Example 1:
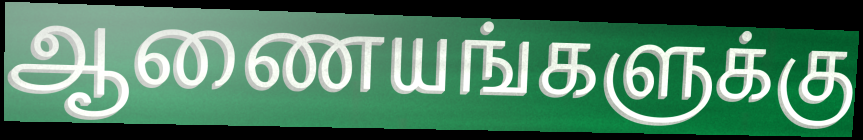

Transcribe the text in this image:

ஆணையங்களுக்கு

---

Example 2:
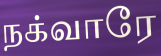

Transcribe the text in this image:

நக்வாரே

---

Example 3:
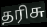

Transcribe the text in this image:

தரிசு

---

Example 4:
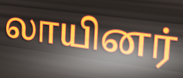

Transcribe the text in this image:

லாயினர்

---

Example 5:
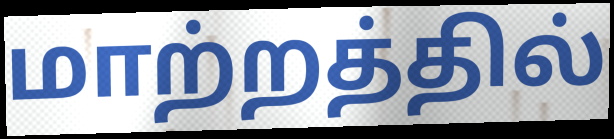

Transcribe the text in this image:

மாற்றத்தில்